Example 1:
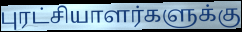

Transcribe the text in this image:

புரட்சியாளர்களுக்கு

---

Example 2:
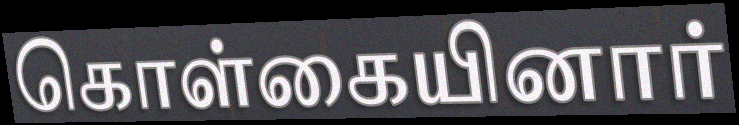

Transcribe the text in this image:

கொள்கையினார்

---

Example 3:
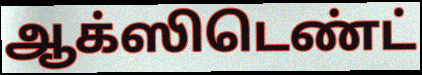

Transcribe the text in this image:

ஆக்ஸிடெண்ட்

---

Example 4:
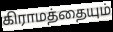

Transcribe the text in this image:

கிராமத்தையும்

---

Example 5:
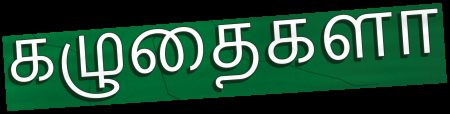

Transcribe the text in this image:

கழுதைகளா